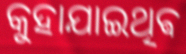
କୁହାଯାଇଥିଵ